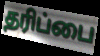
தரிப்பை